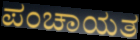
ಪಂಚಾಯತ